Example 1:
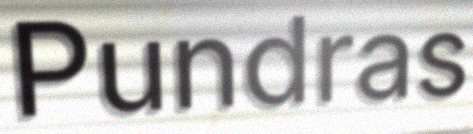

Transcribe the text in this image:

Pundras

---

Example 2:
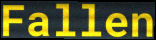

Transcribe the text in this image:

Fallen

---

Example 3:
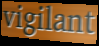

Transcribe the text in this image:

vigilant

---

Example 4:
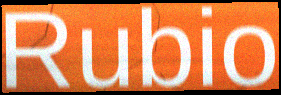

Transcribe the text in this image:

Rubio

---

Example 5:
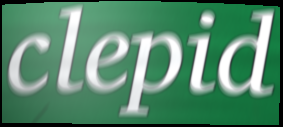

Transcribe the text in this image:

clepid